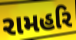
રામહરિ